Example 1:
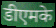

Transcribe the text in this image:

डीएमके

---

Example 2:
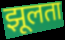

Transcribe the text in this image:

झूलता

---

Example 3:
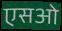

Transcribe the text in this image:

एसओ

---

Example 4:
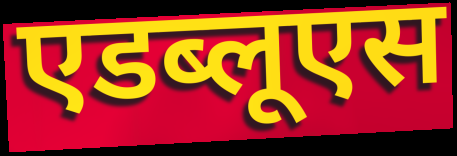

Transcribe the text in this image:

एडब्लूएस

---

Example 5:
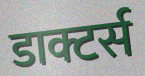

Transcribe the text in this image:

डाक्टर्स